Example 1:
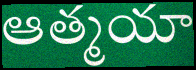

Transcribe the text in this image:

ఆత్మయా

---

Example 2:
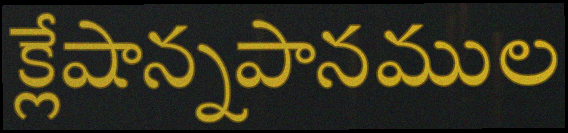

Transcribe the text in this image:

క్లేషాన్నపానముల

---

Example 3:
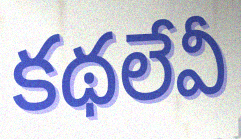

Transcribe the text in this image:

కథలేవీ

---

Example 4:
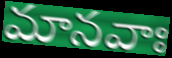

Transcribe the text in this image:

మానవాః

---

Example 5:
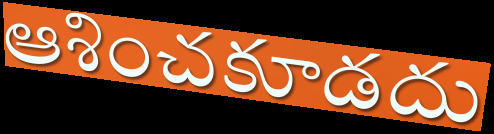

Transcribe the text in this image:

ఆశించకూడదు